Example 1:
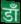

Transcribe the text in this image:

डॉँ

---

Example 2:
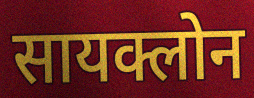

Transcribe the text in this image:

सायक्लोन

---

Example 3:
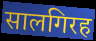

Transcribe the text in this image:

सालगिरह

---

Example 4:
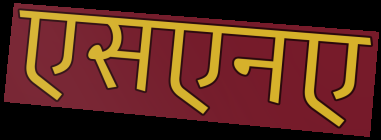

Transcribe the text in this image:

एसएनए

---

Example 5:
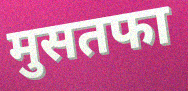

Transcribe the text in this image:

मुसतफा